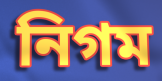
নিগম